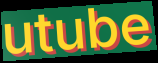
utube